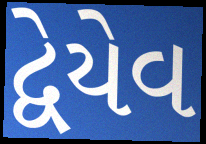
દ્વેયેવ